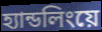
হ্যান্ডলিংয়ে